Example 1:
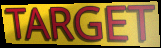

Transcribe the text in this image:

TARGET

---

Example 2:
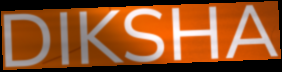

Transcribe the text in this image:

DIKSHA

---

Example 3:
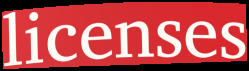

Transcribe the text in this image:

licenses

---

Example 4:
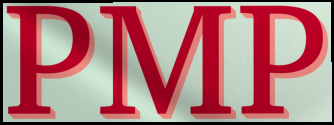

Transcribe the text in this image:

PMP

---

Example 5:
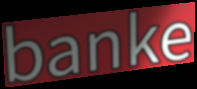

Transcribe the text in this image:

banke